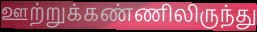
ஊற்றுக்கண்ணிலிருந்து